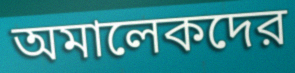
অমালেকদের